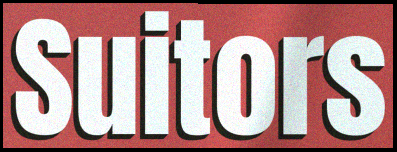
Suitors